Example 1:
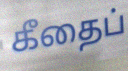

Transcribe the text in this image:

கீதைப்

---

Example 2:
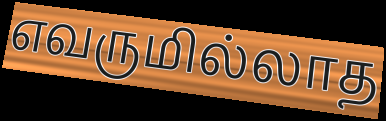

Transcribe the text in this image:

எவருமில்லாத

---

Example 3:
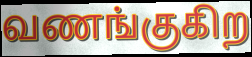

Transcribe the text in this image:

வணங்குகிற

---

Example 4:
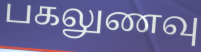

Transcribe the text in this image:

பகலுணவு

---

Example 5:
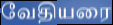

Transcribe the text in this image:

வேதியரை